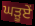
ਘੜੂਏਂ